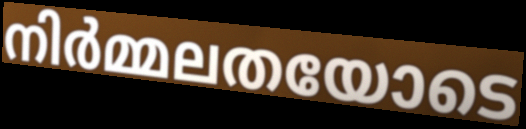
നിർമ്മലതയോടെ